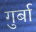
गुर्बा